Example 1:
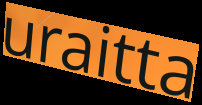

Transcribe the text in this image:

uraitta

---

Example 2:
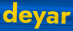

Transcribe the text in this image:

deyar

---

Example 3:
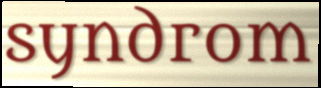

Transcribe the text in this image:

syndrom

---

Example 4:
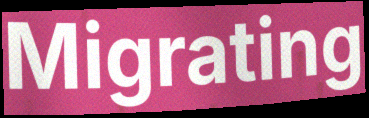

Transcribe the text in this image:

Migrating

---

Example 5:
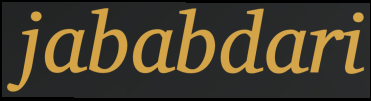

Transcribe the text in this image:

jababdari